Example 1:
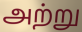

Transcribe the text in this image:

அற்று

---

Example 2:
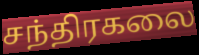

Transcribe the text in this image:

சந்திரகலை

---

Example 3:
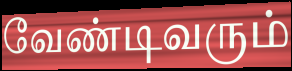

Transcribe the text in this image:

வேண்டிவரும்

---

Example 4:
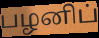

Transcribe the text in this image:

பழனிப்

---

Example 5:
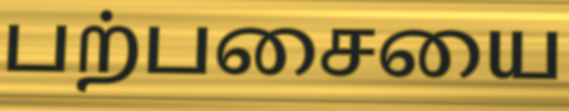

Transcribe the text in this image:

பற்பசையை